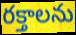
రక్తాలను